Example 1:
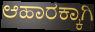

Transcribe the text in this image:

ಆಹಾರಕ್ಕಾಗಿ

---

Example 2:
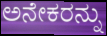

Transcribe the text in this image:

ಅನೇಕರನ್ನು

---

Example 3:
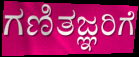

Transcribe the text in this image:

ಗಣಿತಜ್ಞರಿಗೆ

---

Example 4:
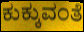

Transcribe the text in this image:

ಕುಕ್ಕುವಂತೆ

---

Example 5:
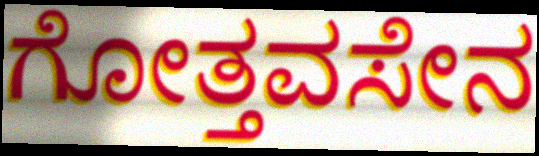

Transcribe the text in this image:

ಗೋತ್ತವಸೇನ